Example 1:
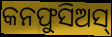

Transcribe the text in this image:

କନଫୁସିଅସ୍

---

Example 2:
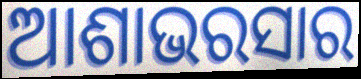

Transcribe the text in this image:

ଆଶାଭରସାର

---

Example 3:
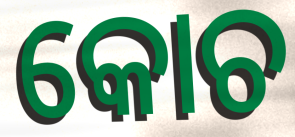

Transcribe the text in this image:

କୋଚ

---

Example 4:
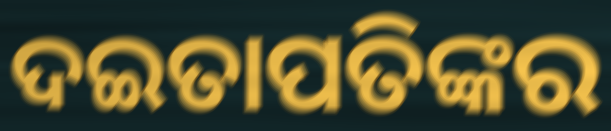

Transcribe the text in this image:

ଦଇତାପତିଙ୍କର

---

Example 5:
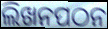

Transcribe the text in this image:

ଲିଖନପଠନ